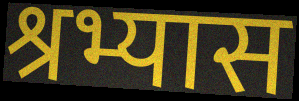
श्रभ्यास